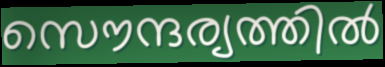
സൌന്ദര്യത്തിൽ